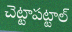
చెట్టాపట్టాల్